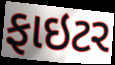
ફાઇટર